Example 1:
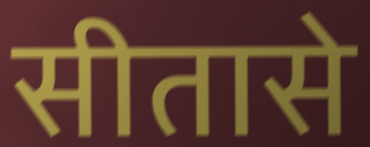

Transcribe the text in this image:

सीतासे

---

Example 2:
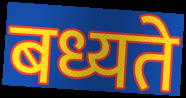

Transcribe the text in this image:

बध्यते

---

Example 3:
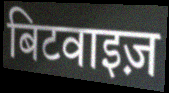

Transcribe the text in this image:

बिटवाइज़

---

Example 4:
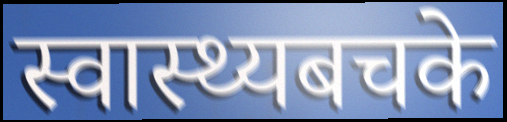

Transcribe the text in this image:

स्वास्थ्यबचके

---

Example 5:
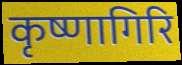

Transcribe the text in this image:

कृष्णागिरि